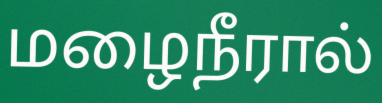
மழைநீரால்